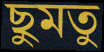
ছুমতু